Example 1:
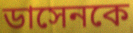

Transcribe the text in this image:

ডাসেনকে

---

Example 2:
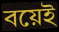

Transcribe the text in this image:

বয়েই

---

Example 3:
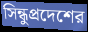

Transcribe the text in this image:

সিন্ধুপ্রদেশের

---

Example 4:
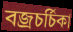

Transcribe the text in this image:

বজ্রচর্চিকা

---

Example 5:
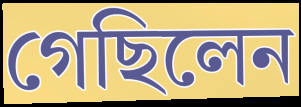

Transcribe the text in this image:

গেছিলেন